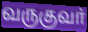
வருகுவர்